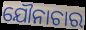
ଯୌନାଚାର